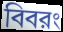
বিবরং